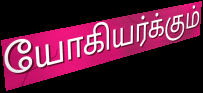
யோகியர்க்கும்